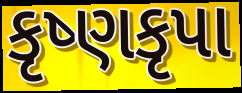
કૃષ્ણકૃપા